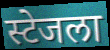
स्टेजला